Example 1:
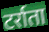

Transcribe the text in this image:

टर्राता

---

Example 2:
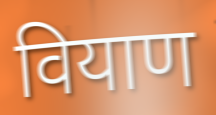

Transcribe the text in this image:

वियाण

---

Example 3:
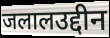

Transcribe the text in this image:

जलालउद्दीन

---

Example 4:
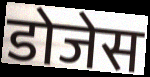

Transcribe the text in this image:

डोजेस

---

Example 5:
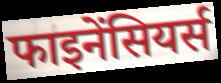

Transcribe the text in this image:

फाइनेंसियर्स